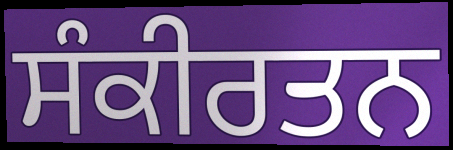
ਸੰਕੀਰਤਨ